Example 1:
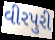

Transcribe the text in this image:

વીરપુરી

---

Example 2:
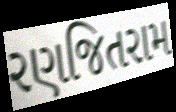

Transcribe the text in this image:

રણજિતરામ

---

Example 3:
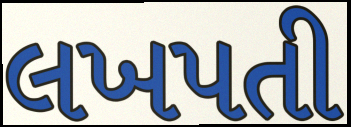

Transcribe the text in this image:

લખપતી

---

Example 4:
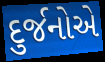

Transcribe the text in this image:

દુર્જનોએ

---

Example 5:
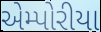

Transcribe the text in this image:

એમ્પોરીયા